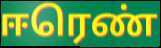
ஈரெண்